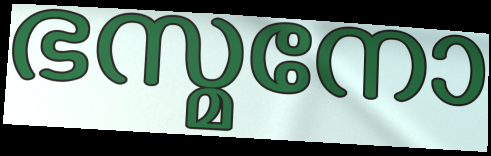
ഭസ്മനോ